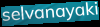
selvanayaki